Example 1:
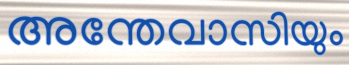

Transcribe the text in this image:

അന്തേവാസിയും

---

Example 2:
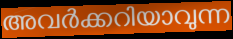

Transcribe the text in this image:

അവർക്കറിയാവുന്ന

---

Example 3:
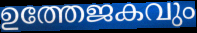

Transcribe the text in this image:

ഉത്തേജകവും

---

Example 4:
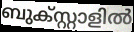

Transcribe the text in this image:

ബുക്സ്റ്റാളിൽ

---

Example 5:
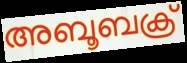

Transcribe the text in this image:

അബൂബക്ര്